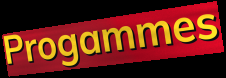
Progammes